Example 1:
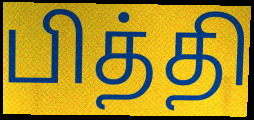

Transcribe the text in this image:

பித்தி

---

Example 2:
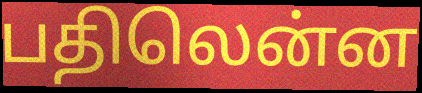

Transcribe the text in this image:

பதிலென்ன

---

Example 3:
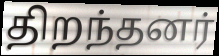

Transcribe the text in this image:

திறந்தனர்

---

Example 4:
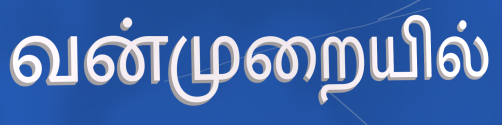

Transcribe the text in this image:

வன்முறையில்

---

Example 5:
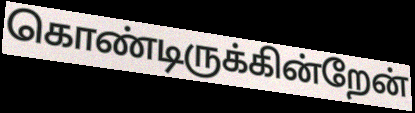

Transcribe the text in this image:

கொண்டிருக்கின்றேன்